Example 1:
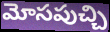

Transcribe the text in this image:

మోసపుచ్చి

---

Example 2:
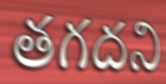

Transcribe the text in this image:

తగదని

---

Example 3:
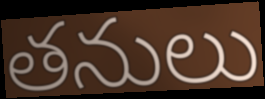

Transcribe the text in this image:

తనులు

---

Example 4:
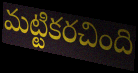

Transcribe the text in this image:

మట్టికరచింది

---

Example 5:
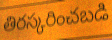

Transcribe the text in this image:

తిరస్కరించబడి